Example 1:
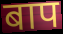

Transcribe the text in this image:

बाप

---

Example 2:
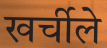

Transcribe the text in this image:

खर्चीले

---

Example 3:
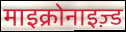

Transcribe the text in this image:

माइक्रोनाइज़्ड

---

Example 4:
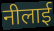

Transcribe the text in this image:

नीलाई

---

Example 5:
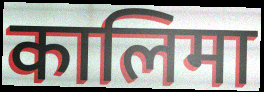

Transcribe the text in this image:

कालिमा